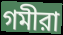
গমীরা